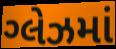
ગ્લેઝમાં